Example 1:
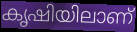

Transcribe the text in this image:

കൃഷിയിലാണ്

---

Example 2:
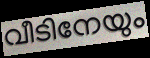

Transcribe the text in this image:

വീടിനേയും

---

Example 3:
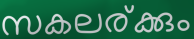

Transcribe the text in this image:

സകലര്ക്കും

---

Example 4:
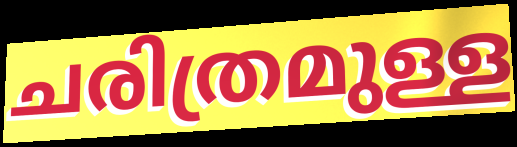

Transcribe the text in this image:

ചരിത്രമുള്ള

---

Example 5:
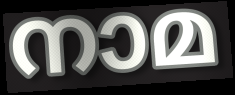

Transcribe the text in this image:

നാമ